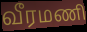
வீரமணி